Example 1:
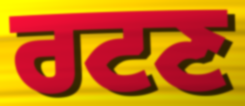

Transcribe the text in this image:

ਰਟਣ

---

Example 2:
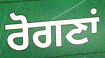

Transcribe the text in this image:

ਰੋਗਣਾਂ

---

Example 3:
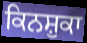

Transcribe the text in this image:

ਕਿਨਸ਼ੁਕਾ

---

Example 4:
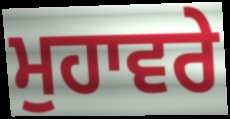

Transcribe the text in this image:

ਮੁਹਾਵਰੇ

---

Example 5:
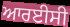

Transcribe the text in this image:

ਆਰਈਸੀ